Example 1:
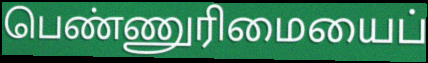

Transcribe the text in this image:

பெண்ணுரிமையைப்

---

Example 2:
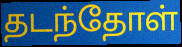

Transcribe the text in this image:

தடந்தோள்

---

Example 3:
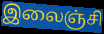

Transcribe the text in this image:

இலைஞ்சி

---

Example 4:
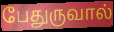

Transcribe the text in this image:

பேதுருவால்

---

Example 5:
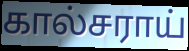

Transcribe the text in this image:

கால்சராய்